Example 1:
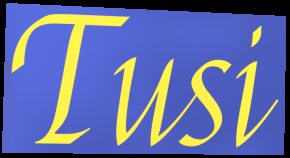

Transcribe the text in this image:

Tusi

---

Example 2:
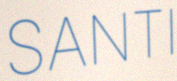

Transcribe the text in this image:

SANTI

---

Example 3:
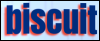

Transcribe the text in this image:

biscuit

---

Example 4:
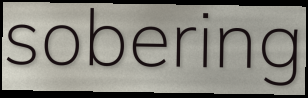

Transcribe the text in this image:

sobering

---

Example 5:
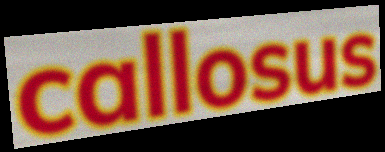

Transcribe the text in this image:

callosus